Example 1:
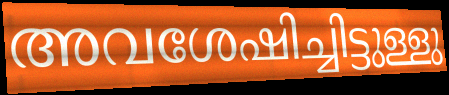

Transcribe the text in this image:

അവശേഷിച്ചിട്ടുള്ളു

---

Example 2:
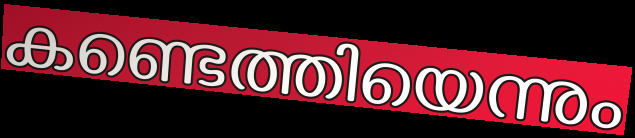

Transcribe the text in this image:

കണ്ടെത്തിയെന്നും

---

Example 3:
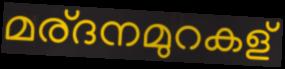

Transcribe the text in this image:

മര്ദനമുറകള്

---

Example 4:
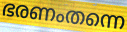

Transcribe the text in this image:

ഭരണംതന്നെ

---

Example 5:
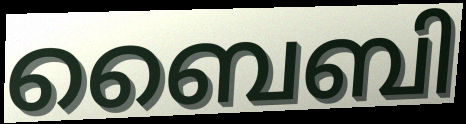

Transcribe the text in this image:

ബൈബി